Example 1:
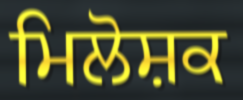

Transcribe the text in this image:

ਮਿਲੋਸ਼ਕ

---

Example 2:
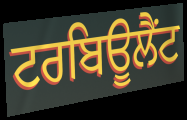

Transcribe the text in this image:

ਟਰਬਿਊਲੈਂਟ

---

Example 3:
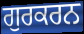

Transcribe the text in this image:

ਗੁਰਕਰਨ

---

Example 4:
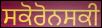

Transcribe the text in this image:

ਸਕੋਰੋਨਸਕੀ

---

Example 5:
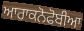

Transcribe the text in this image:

ਆਰਾਕਨੋਫੋਬੀਆ